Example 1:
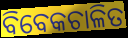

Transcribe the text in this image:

ବିବେକଚାଳିତ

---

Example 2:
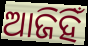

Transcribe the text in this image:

ଆଜିହିଁ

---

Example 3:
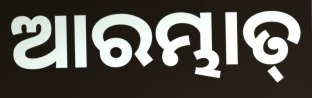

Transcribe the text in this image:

ଆରମ୍ଭାତ୍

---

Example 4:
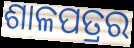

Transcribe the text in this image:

ଶାଳପତ୍ରର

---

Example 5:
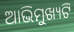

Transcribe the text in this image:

ଆଭିମୁଖ୍ୟଟି